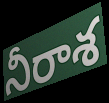
నీరాశ